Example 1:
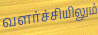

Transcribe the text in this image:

வளர்ச்சியிலும்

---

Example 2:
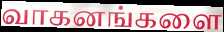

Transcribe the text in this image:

வாகனங்களை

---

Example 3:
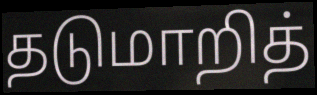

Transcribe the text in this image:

தடுமாறித்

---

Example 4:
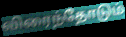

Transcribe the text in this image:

விரைந்தோடும்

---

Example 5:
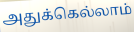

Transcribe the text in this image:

அதுக்கெல்லாம்